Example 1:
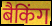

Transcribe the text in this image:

बैकिंग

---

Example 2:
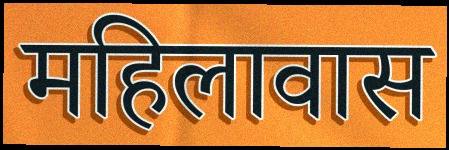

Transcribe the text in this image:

महिलावास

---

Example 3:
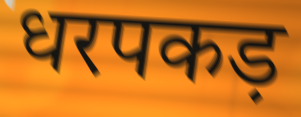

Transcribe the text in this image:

धरपकड़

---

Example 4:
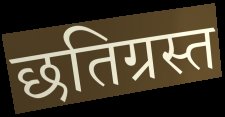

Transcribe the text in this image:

छतिग्रस्त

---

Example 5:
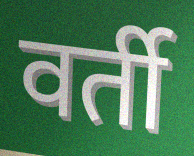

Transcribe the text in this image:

वर्ती